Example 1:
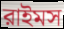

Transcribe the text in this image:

রাইমস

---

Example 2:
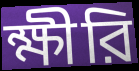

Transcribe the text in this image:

ক্ষীরি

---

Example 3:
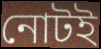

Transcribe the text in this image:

নোটই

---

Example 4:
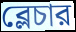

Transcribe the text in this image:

ব্লেচার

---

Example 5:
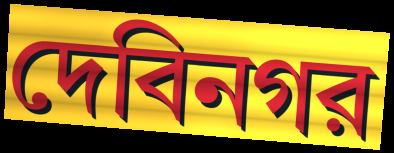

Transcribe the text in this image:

দেবিনগর